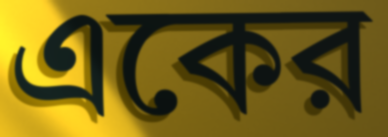
একের